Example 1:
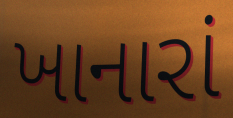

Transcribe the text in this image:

ખાનારાં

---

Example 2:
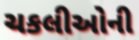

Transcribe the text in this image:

ચકલીઓની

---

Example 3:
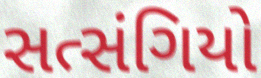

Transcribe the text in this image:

સત્સંગિયો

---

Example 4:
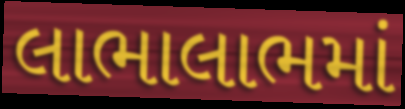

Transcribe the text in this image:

લાભાલાભમાં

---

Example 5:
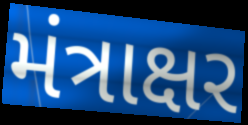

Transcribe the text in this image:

મંત્રાક્ષર